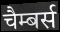
चैम्‍बर्स